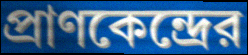
প্রাণকেন্দ্রের